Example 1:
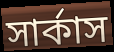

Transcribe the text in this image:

সার্কাস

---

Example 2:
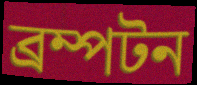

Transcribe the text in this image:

ব্রম্পটন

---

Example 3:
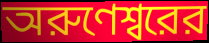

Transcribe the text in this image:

অরুণেশ্বরের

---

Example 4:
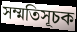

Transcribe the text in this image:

সম্মতিসূচক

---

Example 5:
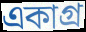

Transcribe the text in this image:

একাগ্র